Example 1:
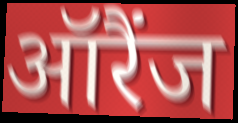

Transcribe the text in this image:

ऑरैंज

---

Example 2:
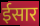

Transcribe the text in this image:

ईसार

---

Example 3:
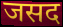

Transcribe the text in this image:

जसद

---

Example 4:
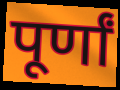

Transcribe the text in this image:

पूर्णां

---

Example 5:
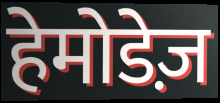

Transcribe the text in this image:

हेमोडेज़